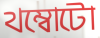
থম্বোটো